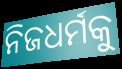
ନିଜଧର୍ମକୁ